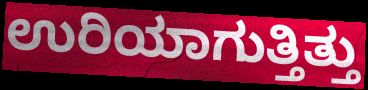
ಉರಿಯಾಗುತ್ತಿತ್ತು